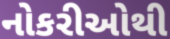
નોકરીઓથી